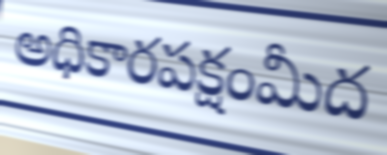
అధికారపక్షంమీద